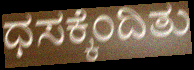
ಧಸಕ್ಕೆಂದಿತು